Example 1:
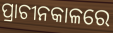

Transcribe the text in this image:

ପ୍ରାଚୀନକାଳରେ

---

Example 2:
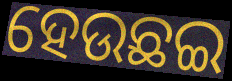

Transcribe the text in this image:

ହେଉଛଇ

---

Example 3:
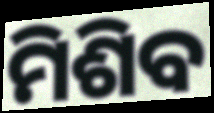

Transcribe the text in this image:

ମିଶିବ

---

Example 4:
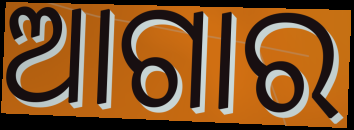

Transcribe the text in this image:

ଆଗାର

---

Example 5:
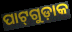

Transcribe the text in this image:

ପାଟ୍‌ଗୁଡ଼ାକ